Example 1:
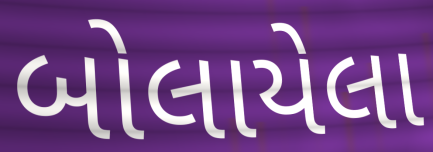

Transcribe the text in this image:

બોલાયેલા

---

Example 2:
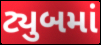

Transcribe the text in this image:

ટ્યુબમાં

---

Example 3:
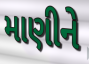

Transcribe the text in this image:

માણીને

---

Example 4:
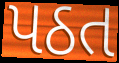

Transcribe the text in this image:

પઠત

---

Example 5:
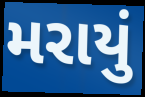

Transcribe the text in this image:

મરાયું